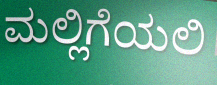
ಮಲ್ಲಿಗೆಯಲಿ